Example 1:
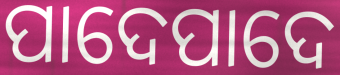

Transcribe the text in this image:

ପାଦେପାଦେ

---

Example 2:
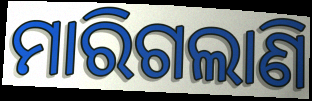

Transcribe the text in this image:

ମାରିଗଲାଣି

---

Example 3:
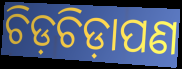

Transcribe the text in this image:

ଚିଡ଼ଚିଡ଼ାପଣ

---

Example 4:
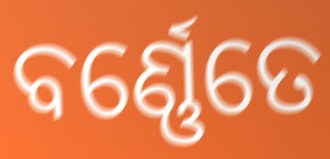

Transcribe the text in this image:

ବର୍ଣ୍ଣେତେ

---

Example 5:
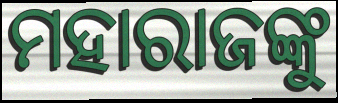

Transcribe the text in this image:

ମହାରାଜଙ୍କୁ